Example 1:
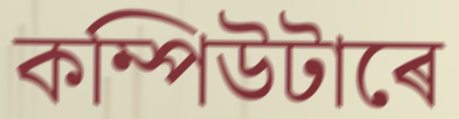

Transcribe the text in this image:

কম্পিউটাৰে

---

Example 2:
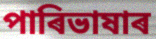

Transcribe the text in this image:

পাৰিভাষাৰ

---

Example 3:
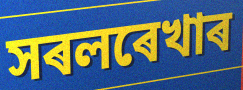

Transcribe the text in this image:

সৰলৰেখাৰ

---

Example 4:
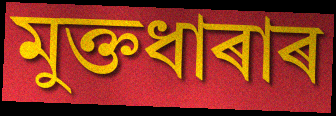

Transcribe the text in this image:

মুক্তধাৰাৰ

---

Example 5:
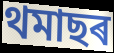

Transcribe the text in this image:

থমাছৰ